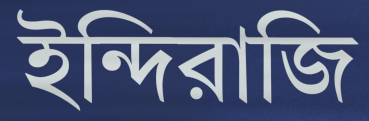
ইন্দিরাজি